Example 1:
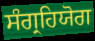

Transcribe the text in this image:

ਸੰਗ੍ਰਹਿਯੋਗ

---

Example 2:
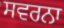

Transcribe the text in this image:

ਸਵਰਨਾ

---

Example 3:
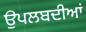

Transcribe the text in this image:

ਉਪਲਬਦੀਆਂ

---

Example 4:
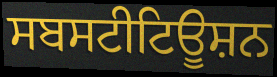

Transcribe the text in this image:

ਸਬਸਟੀਟਿਊਸ਼ਨ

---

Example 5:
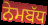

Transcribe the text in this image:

ਨੇਮਬੱਧ